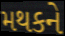
મથકને